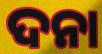
ଦନା